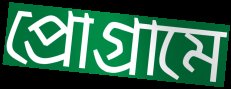
প্রোগ্রামে